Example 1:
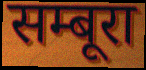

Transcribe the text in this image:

सम्बूरा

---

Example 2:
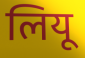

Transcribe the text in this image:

लियू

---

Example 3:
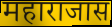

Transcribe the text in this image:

महाराजास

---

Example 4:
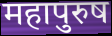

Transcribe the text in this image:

महापुरुष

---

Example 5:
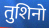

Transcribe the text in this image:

तुशिनो